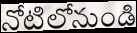
నోటిలోనుండి